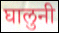
घालुनी